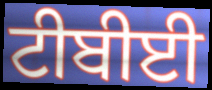
ਟੀਬੀਈ